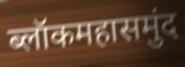
ब्लॉकमहासमुंद